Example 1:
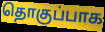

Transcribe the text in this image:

தொகுப்பாக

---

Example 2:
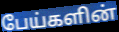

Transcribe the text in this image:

பேய்களின்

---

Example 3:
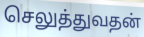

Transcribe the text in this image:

செலுத்துவதன்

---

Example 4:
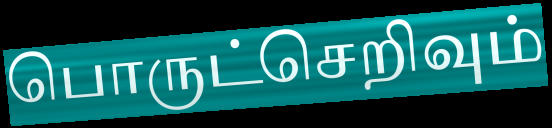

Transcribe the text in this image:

பொருட்செறிவும்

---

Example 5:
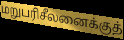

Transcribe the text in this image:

மறுபரிசீலனைக்குத்